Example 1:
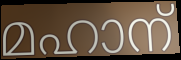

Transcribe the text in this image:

മഹാന്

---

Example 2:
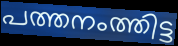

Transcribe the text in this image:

പത്തനംത്തിട്ട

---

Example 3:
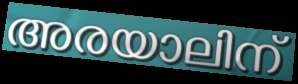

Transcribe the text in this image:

അരയാലിന്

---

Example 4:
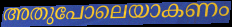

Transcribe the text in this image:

അതുപോലെയാകണം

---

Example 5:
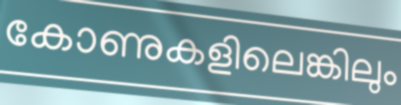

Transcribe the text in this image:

കോണുകളിലെങ്കിലും